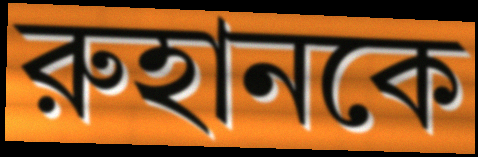
রুহানকে